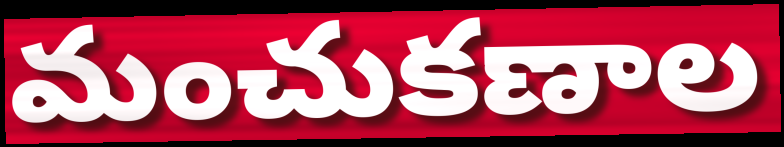
మంచుకణాల